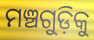
ମଞ୍ଚଗୁଡ଼ିକୁ